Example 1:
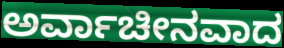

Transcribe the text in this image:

ಅರ್ವಾಚೀನವಾದ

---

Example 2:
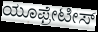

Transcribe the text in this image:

ಯೂಫ್ರೇಟೀಸ್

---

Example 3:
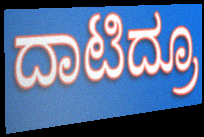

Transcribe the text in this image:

ದಾಟಿದ್ರೂ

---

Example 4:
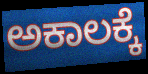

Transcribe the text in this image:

ಅಕಾಲಕ್ಕೆ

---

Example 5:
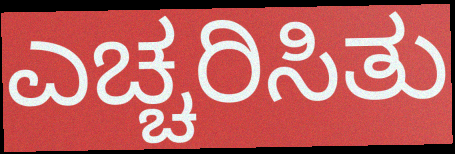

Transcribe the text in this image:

ಎಚ್ಚರಿಸಿತು